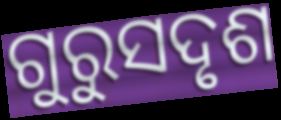
ଗୁରୁସଦୃଶ